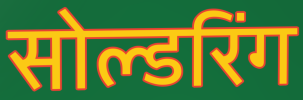
सोल्डरिंग